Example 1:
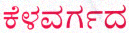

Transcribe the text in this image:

ಕೆಳವರ್ಗದ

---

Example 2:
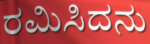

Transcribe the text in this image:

ರಮಿಸಿದನು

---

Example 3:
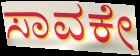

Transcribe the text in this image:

ಸಾವಕೇ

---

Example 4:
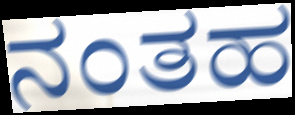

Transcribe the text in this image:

ನಂತಹ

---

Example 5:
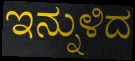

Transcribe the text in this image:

ಇನ್ನುಳಿದ